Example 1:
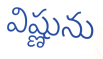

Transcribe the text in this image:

విష్ణును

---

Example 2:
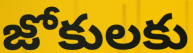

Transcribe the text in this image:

జోకులకు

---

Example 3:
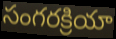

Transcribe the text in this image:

సంగరక్రియా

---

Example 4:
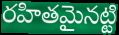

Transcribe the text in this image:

రహితమైనట్టి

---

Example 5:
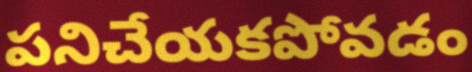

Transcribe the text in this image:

పనిచేయకపోవడం